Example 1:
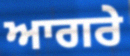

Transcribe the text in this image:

ਆਗਰੇ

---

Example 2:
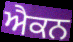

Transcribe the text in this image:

ਐਕਨ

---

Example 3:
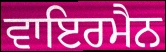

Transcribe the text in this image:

ਵਾਇਰਮੈਨ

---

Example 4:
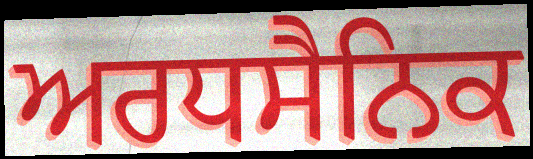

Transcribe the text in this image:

ਅਰਧਸੈਨਿਕ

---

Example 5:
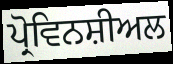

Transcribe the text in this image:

ਪ੍ਰੋਵਿਨਸ਼ੀਅਲ